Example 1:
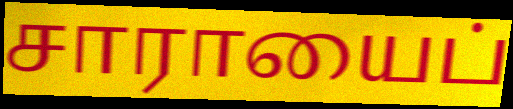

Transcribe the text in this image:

சாராயைப்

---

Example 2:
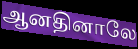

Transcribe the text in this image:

ஆனதினாலே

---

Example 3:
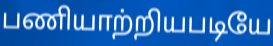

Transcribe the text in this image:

பணியாற்றியபடியே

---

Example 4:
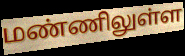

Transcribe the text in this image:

மண்ணிலுள்ள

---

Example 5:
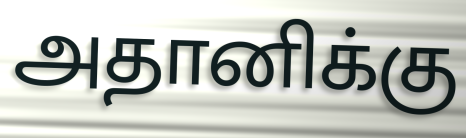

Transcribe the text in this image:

அதானிக்கு